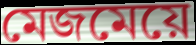
মেজমেয়ে